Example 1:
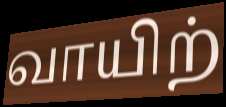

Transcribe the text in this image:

வாயிற்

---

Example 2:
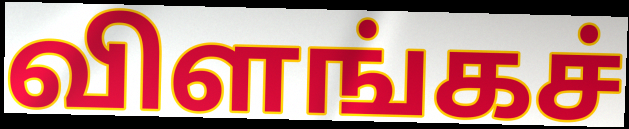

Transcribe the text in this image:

விளங்கச்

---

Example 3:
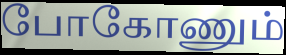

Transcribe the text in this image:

போகோணும்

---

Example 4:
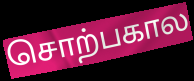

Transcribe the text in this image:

சொற்பகால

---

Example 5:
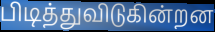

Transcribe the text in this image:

பிடித்துவிடுகின்றன